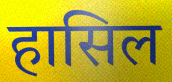
हासिल